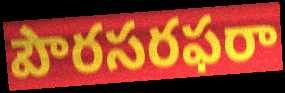
పౌరసరఫరా